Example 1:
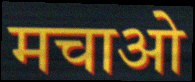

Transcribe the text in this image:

मचाओ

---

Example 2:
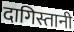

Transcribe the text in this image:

दागिस्तानी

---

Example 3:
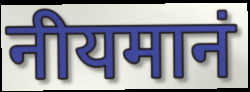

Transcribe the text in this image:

नीयमानं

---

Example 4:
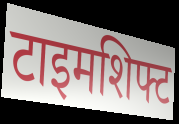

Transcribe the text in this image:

टाइमशिफ्ट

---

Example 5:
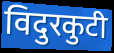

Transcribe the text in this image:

विदुरकुटी